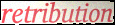
retribution